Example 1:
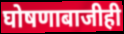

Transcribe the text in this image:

घोषणाबाजीही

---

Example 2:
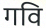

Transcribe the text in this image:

गवि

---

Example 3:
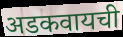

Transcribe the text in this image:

अडकवायची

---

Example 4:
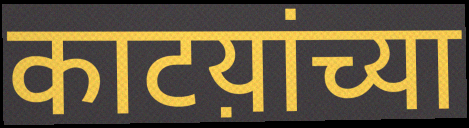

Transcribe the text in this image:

काटय़ांच्या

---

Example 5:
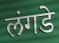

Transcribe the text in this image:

लंगडे